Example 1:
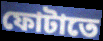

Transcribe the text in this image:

ফোটাতে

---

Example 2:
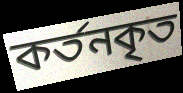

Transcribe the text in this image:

কর্তনকৃত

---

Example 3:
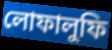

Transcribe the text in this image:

লোফালুফি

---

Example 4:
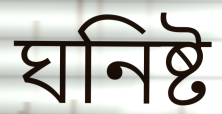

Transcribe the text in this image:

ঘনিষ্ট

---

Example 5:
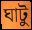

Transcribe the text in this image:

ঘাটু